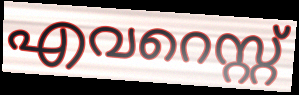
എവറെസ്റ്റ്